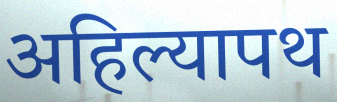
अहिल्यापथ